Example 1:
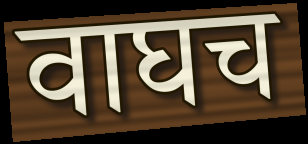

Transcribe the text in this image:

वाघच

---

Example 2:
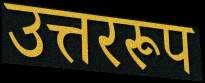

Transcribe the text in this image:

उत्तररूप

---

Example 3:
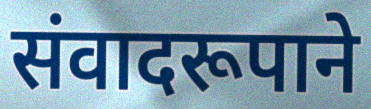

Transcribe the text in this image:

संवादरूपाने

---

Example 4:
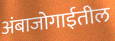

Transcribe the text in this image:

अंबाजोगाईतील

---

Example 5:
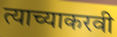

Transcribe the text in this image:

त्याच्याकरवी